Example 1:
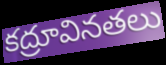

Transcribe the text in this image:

కద్రూవినతలు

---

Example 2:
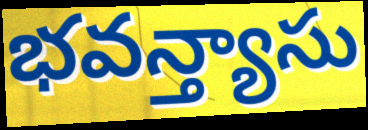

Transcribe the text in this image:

భవన్త్యాసు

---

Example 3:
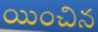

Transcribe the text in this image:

యించిన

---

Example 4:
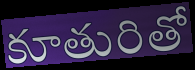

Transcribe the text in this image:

కూతురితో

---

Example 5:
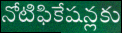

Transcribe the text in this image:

నోటిఫికేషన్లకు